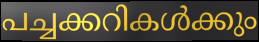
പച്ചക്കറികൾക്കും